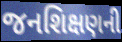
જનશિક્ષણની